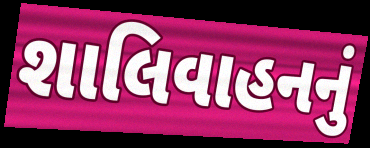
શાલિવાહનનું